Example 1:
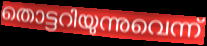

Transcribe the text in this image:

തൊട്ടറിയുന്നുവെന്ന്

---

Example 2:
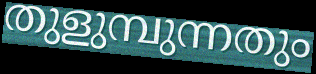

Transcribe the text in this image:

തുളുമ്പുന്നതും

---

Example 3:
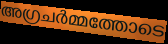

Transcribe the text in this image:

അഗ്രചർമ്മത്തോടെ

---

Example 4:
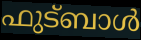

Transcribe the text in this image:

ഫുട്ബാൾ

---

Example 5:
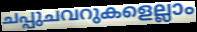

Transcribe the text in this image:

ചപ്പുചവറുകളെല്ലാം